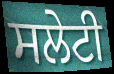
ਸਲੇਟੀ